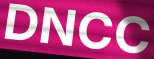
DNCC